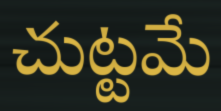
చుట్టమే